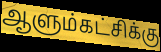
ஆளும்கட்சிக்கு